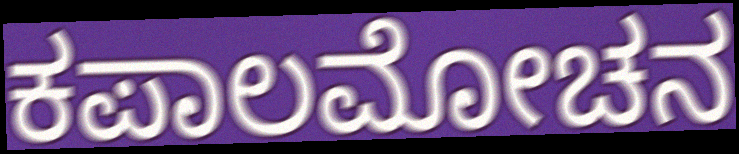
ಕಪಾಲಮೋಚನ